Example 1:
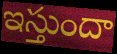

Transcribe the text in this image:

ఇస్తుందా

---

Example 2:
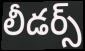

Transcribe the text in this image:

లీడర్స్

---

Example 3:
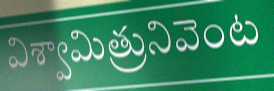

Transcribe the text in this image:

విశ్వామిత్రునివెంట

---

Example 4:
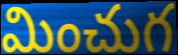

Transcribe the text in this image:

మించుగ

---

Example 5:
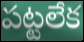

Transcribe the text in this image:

పట్టలేక